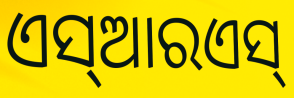
ଏସ୍ଆରଏସ୍